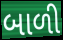
બાળી